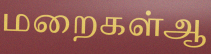
மறைகள்ஆ